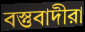
বস্তুবাদীরা